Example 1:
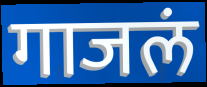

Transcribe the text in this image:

गाजलं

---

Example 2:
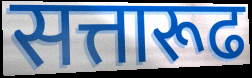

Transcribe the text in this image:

सत्तारूढ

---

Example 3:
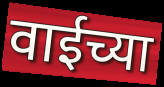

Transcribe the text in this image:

वाईच्या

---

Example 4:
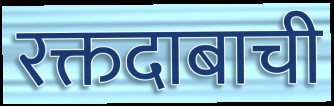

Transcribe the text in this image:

रक्तदाबाची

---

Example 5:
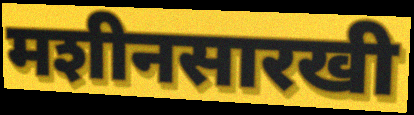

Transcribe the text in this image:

मशीनसारखी